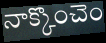
నాక్కొంచెం